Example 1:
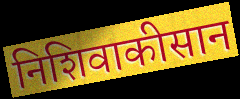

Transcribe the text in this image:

निशिवाकीसान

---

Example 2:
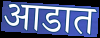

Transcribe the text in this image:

आडात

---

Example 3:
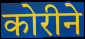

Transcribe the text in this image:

कोरीने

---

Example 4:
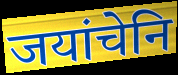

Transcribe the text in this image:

जयांचेनि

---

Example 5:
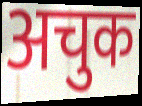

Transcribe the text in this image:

अचुक